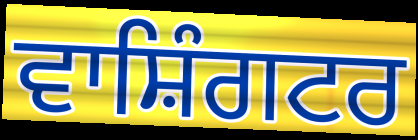
ਵਾਸ਼ਿੰਗਟਰ